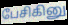
பேசிகினு